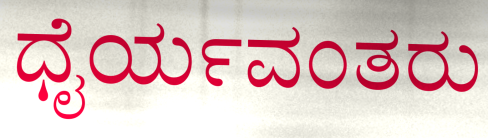
ಧೈರ್ಯವಂತರು